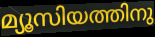
മ്യൂസിയത്തിനു